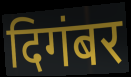
दिगंबर